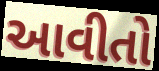
આવીતો